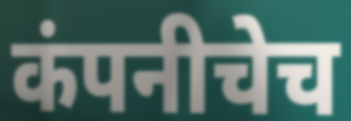
कंपनीचेच